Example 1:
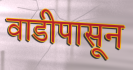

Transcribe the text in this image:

वाडीपासून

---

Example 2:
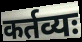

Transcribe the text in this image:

कर्तव्यः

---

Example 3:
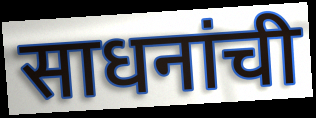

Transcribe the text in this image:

साधनांची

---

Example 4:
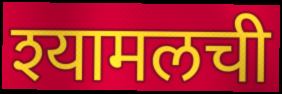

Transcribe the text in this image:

श्यामलची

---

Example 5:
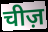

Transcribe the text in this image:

चीज़